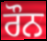
ਰੌਨ